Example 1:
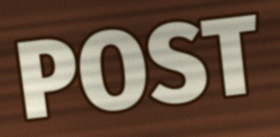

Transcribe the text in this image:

POST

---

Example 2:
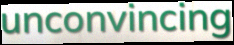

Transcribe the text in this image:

unconvincing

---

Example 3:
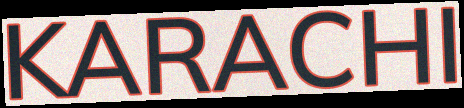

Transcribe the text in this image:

KARACHI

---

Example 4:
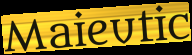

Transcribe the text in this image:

Maieutic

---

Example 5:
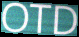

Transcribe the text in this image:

OTD